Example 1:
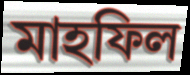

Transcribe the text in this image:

মাহফিল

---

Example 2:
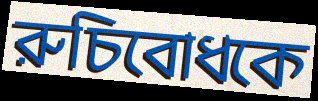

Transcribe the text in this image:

রুচিবোধকে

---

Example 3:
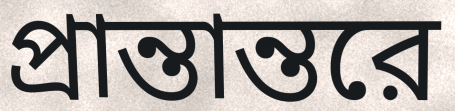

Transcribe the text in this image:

প্রান্তান্তরে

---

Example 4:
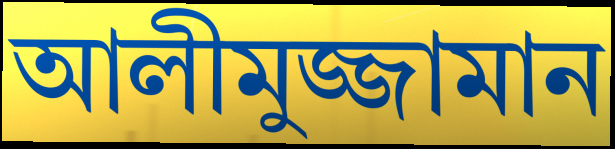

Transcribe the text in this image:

আলীমুজ্জামান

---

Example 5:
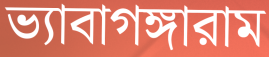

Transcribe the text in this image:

ভ্যাবাগঙ্গারাম